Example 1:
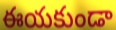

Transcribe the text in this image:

ఈయకుండా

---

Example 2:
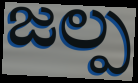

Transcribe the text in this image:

జల్ప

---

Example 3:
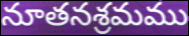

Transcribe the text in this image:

నూతనశ్రమము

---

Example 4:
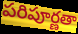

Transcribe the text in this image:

పరిపూర్ణతా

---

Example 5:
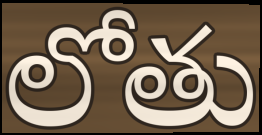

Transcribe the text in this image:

లోతు